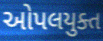
ઓપલયુક્ત